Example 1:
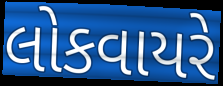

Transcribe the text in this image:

લોકવાયરે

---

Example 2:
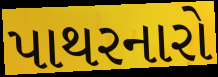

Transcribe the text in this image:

પાથરનારો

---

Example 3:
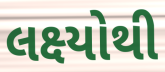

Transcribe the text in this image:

લક્ષ્યોથી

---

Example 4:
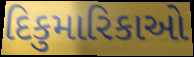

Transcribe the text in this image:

દિકુમારિકાઓ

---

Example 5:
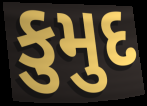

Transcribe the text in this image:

કુમુદ